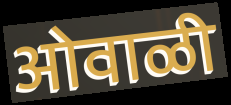
ओवाळी